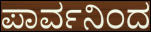
ಪಾರ್ವನಿಂದ